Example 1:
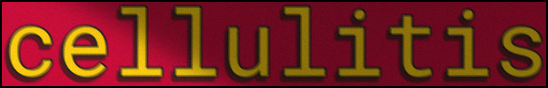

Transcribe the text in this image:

cellulitis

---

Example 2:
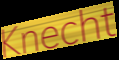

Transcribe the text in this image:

Knecht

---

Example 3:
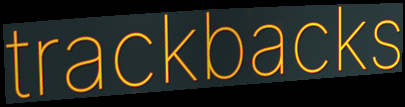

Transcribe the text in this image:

trackbacks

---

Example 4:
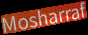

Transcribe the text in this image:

Mosharraf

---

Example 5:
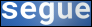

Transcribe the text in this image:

segue